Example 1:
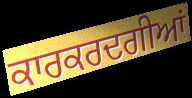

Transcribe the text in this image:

ਕਾਰਕਰਦਗੀਆਂ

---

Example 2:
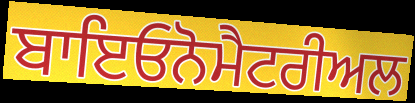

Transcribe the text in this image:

ਬਾਇਓਨੋਮੈਟਰੀਅਲ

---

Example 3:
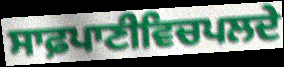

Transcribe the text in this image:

ਸਾਫ਼ਪਾਣੀਵਿਚਪਲਦੇ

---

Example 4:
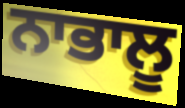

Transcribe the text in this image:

ਨਾਭਾਲੂ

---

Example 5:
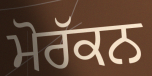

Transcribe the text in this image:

ਮੋਰੱਕਨ